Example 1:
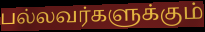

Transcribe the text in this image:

பல்லவர்களுக்கும்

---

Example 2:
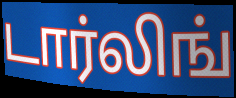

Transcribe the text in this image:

டார்லிங்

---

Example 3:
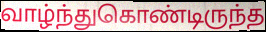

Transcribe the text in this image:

வாழ்ந்துகொண்டிருந்த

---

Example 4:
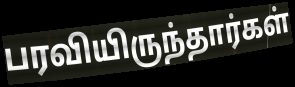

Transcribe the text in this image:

பரவியிருந்தார்கள்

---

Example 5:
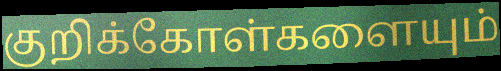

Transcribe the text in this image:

குறிக்கோள்களையும்